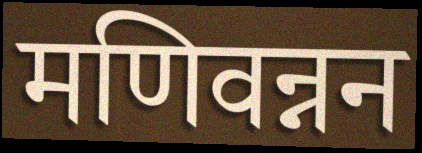
मणिवन्नन